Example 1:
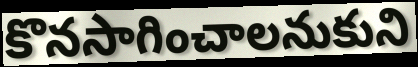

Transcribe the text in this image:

కొనసాగించాలనుకుని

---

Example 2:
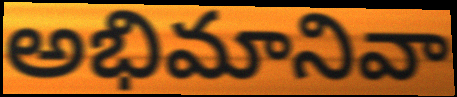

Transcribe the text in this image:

అభిమానివా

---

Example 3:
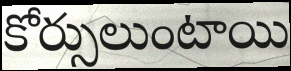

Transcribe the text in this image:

కోర్సులుంటాయి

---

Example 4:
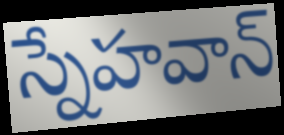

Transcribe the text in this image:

స్నేహవాన్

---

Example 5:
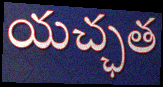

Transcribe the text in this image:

యచ్ఛత